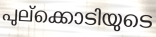
പുല്ക്കൊടിയുടെ